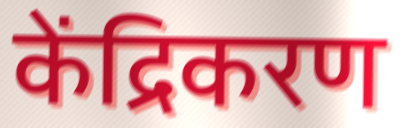
केंद्रिकरण